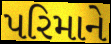
પરિમાને